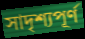
সাদৃশ্যপূৰ্ণ